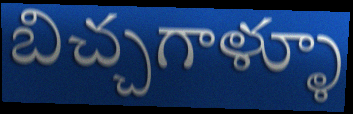
బిచ్చగాళ్ళూ